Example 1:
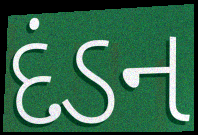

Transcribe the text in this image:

દંડન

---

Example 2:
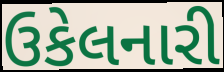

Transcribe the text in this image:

ઉકેલનારી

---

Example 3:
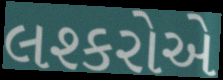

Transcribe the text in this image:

લશ્કરોએ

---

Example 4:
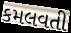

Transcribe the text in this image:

કમલવતી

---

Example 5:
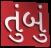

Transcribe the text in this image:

તુંબું